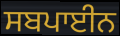
ਸਬਪਾਈਨ